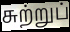
சுற்றுப்